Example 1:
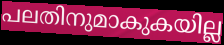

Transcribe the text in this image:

പലതിനുമാകുകയില്ല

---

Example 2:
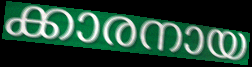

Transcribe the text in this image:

ക്കാരനായ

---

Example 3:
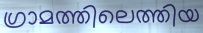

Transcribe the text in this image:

ഗ്രാമത്തിലെത്തിയ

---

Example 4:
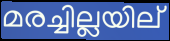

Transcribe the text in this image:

മരച്ചില്ലയില്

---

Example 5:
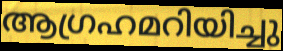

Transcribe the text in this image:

ആഗ്രഹമറിയിച്ചു